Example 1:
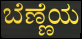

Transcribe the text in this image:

ಬೆಣ್ಣೆಯ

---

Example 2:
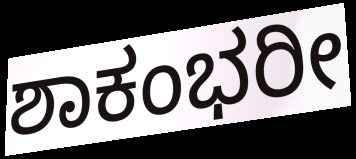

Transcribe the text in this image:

ಶಾಕಂಭರೀ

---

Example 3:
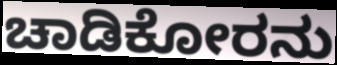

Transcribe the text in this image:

ಚಾಡಿಕೋರನು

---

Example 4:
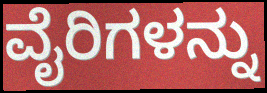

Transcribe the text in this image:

ವೈರಿಗಳನ್ನು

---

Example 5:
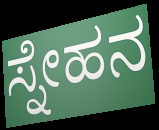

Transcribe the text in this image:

ಸ್ನೇಹನ